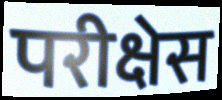
परीक्षेस